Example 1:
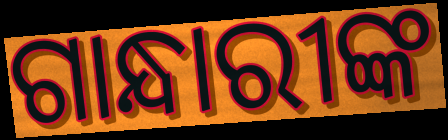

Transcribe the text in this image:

ଗାନ୍ଧାରୀଙ୍କ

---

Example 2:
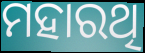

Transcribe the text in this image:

ମହାରଥି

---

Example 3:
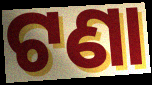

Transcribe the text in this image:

ଟଣା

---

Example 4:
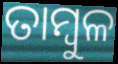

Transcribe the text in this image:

ତାମ୍ୱୁଳ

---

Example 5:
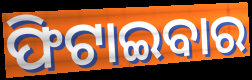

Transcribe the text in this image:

ଫିଟାଇବାର